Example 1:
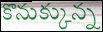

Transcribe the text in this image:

కొనుక్కున్న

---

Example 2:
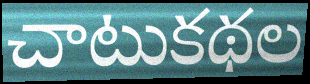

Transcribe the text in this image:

చాటుకథల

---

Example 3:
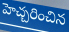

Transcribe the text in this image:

హెచ్చరించిన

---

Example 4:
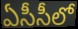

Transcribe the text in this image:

ఏసీసీలో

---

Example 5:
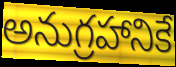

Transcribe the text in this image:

అనుగ్రహానికే